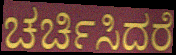
ಚರ್ಚಿಸಿದರೆ